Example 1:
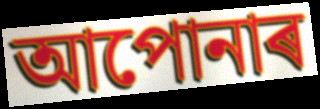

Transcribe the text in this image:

আপোনাৰ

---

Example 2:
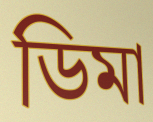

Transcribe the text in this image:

ডিমা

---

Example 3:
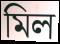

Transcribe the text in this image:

মিল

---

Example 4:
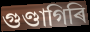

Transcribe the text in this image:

গুণ্ডাগিৰি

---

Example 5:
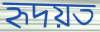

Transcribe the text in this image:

হৃদয়ত